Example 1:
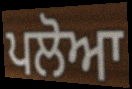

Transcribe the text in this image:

ਪਲੋਆ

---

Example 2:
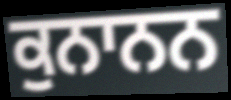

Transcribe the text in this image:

ਕੁਨਾਨਨ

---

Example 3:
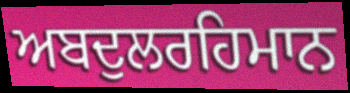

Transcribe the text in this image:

ਅਬਦੁਲਰਹਿਮਾਨ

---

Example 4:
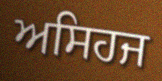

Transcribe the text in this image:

ਅਸਿਹਜ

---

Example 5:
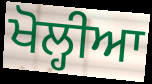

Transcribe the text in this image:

ਖੋਲ੍ਹੀਆ